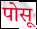
पोसू